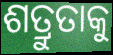
ଶତ୍ରୁତାକୁ